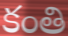
కంతి